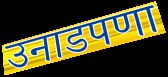
उनाडपणा